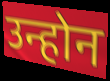
उन्होन